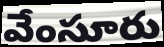
వేంసూరు